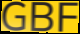
GBF